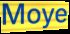
Moye